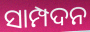
ସାମ୍ପଦନ